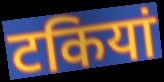
टकियां